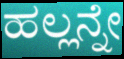
ಹಲ್ಲನ್ನೇ